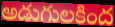
అడుగులకింద